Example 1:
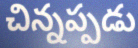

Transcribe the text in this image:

చిన్నప్పడు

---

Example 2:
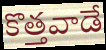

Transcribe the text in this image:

కొత్తవాడే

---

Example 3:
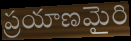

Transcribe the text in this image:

ప్రయాణమైరి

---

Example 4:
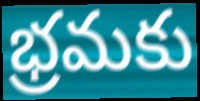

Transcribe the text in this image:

భ్రమకు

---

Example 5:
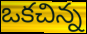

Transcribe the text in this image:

ఒకచిన్న